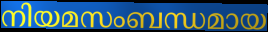
നിയമസംബന്ധമായ